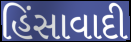
હિંસાવાદી